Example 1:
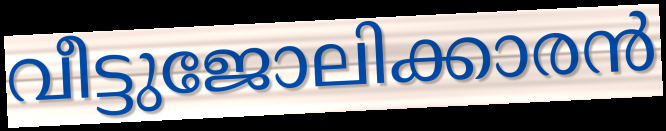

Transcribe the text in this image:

വീട്ടുജോലിക്കാരൻ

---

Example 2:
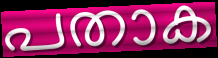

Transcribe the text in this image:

പതാക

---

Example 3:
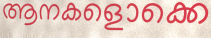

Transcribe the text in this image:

ആനകളൊക്കെ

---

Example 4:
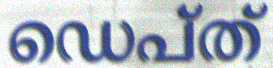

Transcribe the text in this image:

ഡെപ്ത്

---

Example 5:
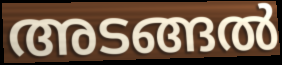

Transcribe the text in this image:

അടങ്ങൽ